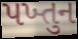
પખ્તુન